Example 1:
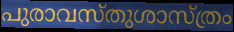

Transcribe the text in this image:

പുരാവസ്തുശാസ്ത്രം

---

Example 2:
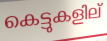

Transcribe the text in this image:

കെട്ടുകളില്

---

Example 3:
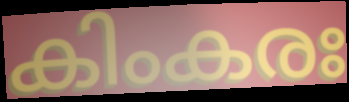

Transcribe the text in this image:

കിംകരഃ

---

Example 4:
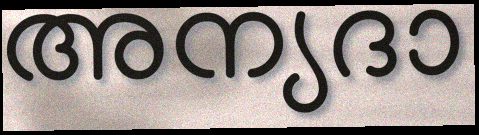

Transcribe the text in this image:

അന്യദാ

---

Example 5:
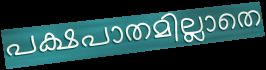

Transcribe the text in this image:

പക്ഷപാതമില്ലാതെ